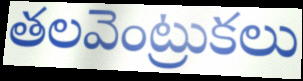
తలవెంట్రుకలు